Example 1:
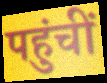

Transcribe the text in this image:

पहुंचीं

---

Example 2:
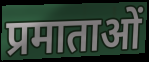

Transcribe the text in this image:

प्रमाताओं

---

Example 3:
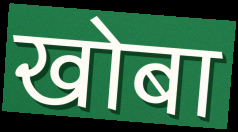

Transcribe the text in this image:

खोबा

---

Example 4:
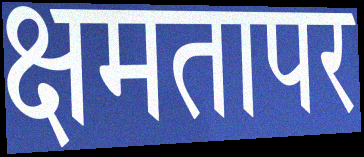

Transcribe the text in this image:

क्षमतापर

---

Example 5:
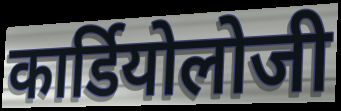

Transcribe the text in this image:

कार्डियोलोजी